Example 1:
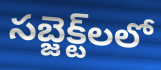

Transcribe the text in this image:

సబ్జెక్ట్‌లలో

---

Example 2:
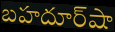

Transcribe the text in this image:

బహదూర్‌షా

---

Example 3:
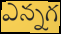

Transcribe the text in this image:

ఎన్నగ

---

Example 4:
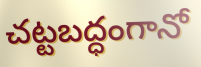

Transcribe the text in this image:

చట్టబద్ధంగానో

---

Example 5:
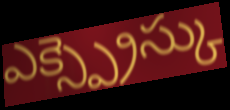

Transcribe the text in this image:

ఎక్స్ప్రెస్కు